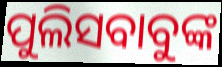
ପୁଲିସବାବୁଙ୍କ